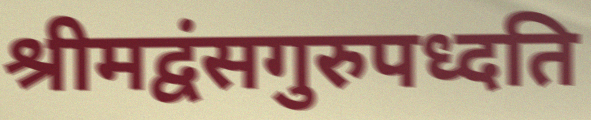
श्रीमद्वंसगुरुपध्दति